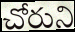
చోరుని